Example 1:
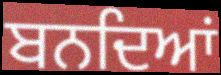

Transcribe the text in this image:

ਬਨਦਿਆਂ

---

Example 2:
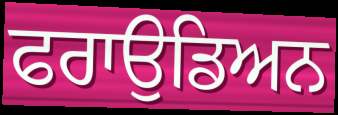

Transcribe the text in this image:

ਫਰਾਉਡਿਅਨ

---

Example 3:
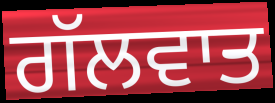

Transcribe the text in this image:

ਗੱਲਵਾਤ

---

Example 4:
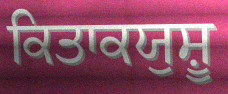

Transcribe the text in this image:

ਕਿਤਾਕਯੁਸ਼ੂ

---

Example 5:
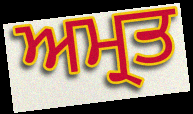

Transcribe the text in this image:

ਅਮ੍ਰਤ